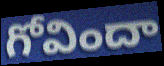
గోవిందా